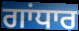
ਗਾਂਧਾਰ